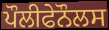
ਪੌਲੀਫੇਨੌਲਸ